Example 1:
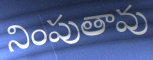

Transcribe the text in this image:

నింపుతావు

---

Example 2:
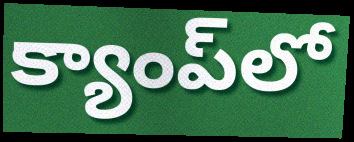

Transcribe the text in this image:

క్యాంప్‌లో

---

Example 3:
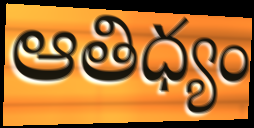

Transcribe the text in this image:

ఆతిధ్యం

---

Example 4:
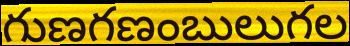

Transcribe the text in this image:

గుణగణంబులుగల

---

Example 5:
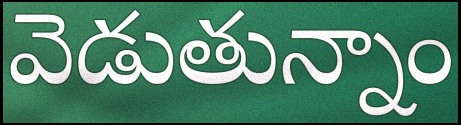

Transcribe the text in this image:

వెడుతున్నాం